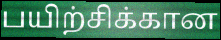
பயிற்சிக்கான